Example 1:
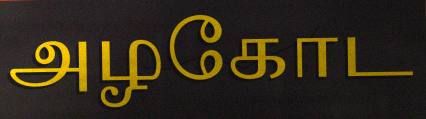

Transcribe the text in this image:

அழகோட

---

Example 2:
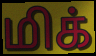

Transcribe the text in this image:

மிக்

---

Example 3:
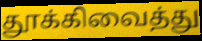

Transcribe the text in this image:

தூக்கிவைத்து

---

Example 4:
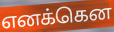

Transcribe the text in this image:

எனக்கென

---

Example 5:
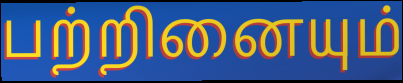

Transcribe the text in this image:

பற்றினையும்